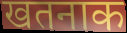
खतनाक